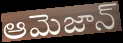
ఆమెజాన్